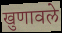
खुणावले